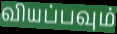
வியப்பவும்